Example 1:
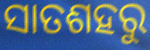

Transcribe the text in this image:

ସାତଶହରୁ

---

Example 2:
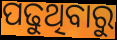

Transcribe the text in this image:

ପଢୁଥିବାରୁ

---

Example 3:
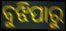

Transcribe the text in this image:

ବୁଝିପାରୁ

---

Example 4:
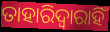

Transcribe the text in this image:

ତାହାରିଦ୍ୱାରାହିଁ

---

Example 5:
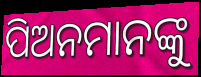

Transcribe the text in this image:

ପିଅନମାନଙ୍କୁ